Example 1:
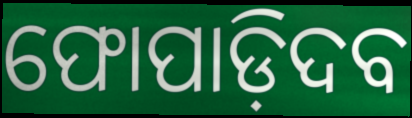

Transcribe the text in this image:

ଫୋପାଡ଼ିଦବ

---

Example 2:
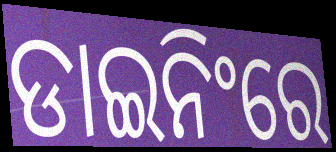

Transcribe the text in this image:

ଡାଇନିଂରେ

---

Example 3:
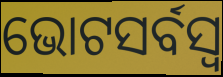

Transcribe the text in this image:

ଭୋଟସର୍ବସ୍ବ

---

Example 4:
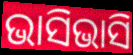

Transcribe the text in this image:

ଭାସିଭାସି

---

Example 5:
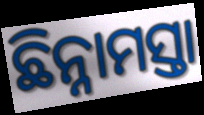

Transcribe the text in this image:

ଛିନ୍ନାମସ୍ତା